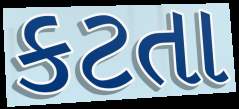
કટતા